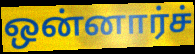
ஒன்னார்ச்